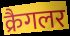
क्रैगलर